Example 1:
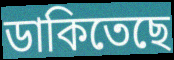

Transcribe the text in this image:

ডাকিতেছে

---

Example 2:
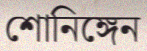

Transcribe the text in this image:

শোনিঙ্গেন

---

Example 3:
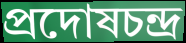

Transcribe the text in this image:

প্রদোষচন্দ্র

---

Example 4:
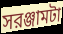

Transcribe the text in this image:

সরঞ্জামটা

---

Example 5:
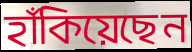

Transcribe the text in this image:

হাঁকিয়েছেন